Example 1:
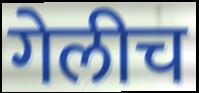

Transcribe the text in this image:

गेलीच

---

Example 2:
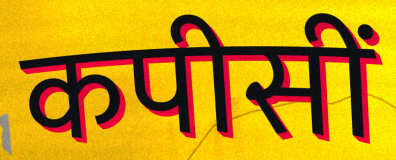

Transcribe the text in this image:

कपीसीं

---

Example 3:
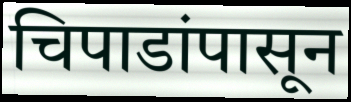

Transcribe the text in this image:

चिपाडांपासून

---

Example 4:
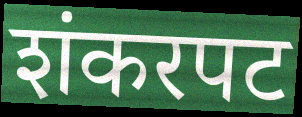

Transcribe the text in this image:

शंकरपट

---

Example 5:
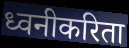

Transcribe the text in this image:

ध्वनीकरिता